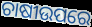
ଚାଷୀଉପରେ